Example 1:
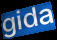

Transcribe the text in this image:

gida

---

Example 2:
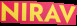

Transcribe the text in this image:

NIRAV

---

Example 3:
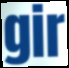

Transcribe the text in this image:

gir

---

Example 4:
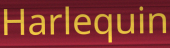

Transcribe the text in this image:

Harlequin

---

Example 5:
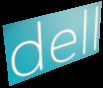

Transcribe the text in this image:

dell